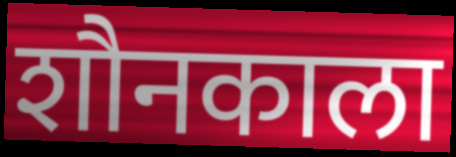
शौनकाला